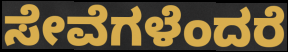
ಸೇವೆಗಳೆಂದರೆ